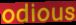
odious